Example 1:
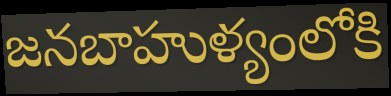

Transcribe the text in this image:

జనబాహుళ్యంలోకి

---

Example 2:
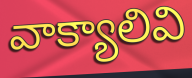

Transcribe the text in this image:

వాక్యాలివి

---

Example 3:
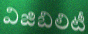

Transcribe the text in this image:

విజిబిలిటీ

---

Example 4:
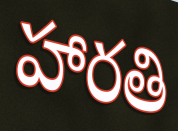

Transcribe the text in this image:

హారతి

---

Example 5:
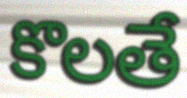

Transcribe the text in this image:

కొలతే